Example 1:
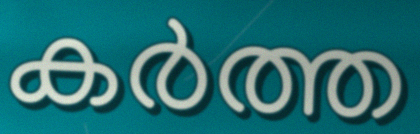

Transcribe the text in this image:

കർത്ത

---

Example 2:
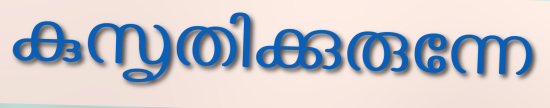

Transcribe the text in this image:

കുസൃതിക്കുരുന്നേ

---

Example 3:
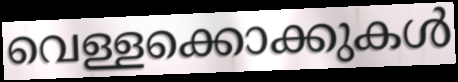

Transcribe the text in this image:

വെള്ളക്കൊക്കുകൾ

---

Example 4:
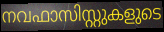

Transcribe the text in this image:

നവഫാസിസ്റ്റുകളുടെ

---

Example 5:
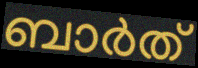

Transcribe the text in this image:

ബാർത്